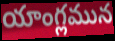
యాంగ్లమున